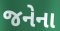
જનેના